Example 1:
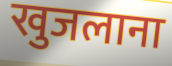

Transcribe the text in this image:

खुजलाना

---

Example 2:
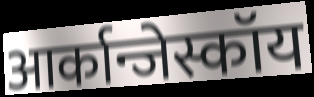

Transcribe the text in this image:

आर्कान्जेस्कॉय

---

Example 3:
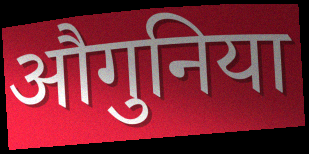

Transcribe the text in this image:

औगुनिया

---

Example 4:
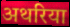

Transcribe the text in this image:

अथरिया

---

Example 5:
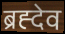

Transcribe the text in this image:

ब्रह्देव